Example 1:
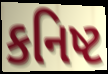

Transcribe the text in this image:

કનિષ્ટ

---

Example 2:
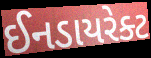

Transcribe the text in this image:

ઈનડાયરેક્ટ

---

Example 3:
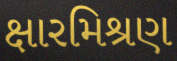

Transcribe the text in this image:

ક્ષારમિશ્રણ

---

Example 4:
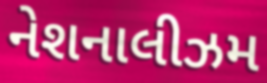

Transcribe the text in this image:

નેશનાલીઝમ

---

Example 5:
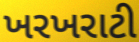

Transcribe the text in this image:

ખરખરાટી